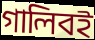
গালিবই